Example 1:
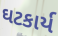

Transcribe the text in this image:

ઘટકાર્ય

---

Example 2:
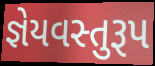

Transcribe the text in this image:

જ્ઞેયવસ્તુરૂપ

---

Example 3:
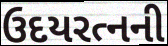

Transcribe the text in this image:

ઉદયરત્નની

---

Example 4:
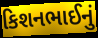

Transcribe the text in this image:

કિશનભાઈનું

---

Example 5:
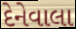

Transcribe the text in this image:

દેનેવાલા